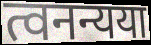
त्वनन्यया